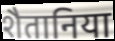
शैतानिया